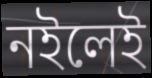
নইলেই